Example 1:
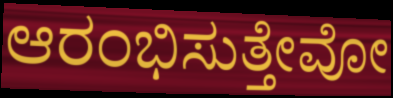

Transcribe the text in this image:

ಆರಂಭಿಸುತ್ತೇವೋ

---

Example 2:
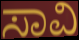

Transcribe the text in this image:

ಸಾವಿ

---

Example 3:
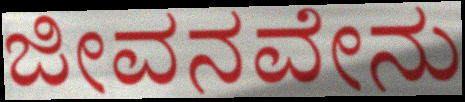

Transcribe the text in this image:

ಜೀವನವೇನು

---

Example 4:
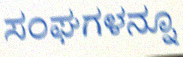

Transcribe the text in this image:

ಸಂಘಗಳನ್ನೂ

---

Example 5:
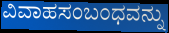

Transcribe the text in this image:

ವಿವಾಹಸಂಬಂಧವನ್ನು